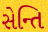
સેન્તિ